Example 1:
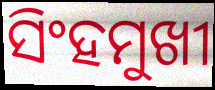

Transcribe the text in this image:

ସିଂହମୁଖୀ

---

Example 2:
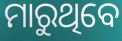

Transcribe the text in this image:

ମାରୁଥିବେ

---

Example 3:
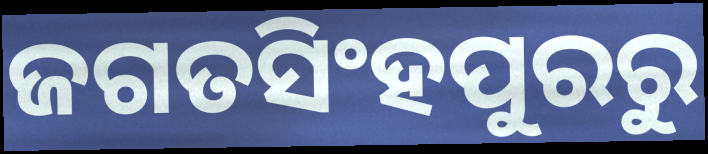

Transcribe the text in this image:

ଜଗତସିଂହପୁରରୁ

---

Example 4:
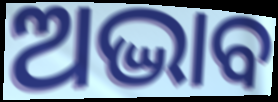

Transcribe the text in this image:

ଅଦ୍ଭାବ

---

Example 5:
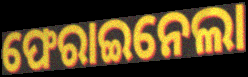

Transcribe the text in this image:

ଫେରାଇନେଲା